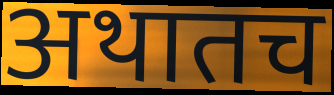
अथातच